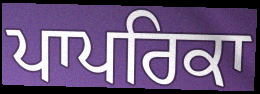
ਪਾਪਰਿਕਾ